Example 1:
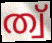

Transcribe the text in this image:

ത്വ്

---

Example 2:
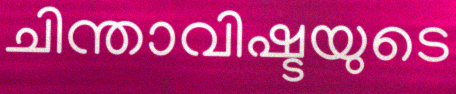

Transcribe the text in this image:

ചിന്താവിഷ്ടയുടെ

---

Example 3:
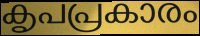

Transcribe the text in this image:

കൃപപ്രകാരം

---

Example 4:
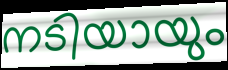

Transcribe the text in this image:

നടിയായും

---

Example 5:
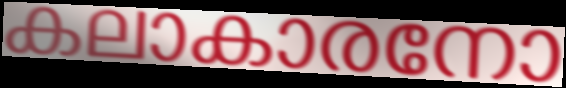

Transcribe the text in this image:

കലാകാരനോ